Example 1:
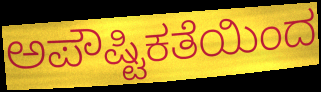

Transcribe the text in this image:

ಅಪೌಷ್ಟಿಕತೆಯಿಂದ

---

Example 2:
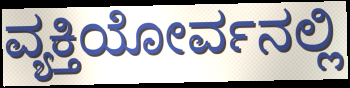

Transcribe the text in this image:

ವ್ಯಕ್ತಿಯೋರ್ವನಲ್ಲಿ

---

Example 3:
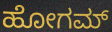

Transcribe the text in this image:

ಹೋಗಮ್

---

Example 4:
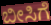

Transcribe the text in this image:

ಬೀಸಿಗೆ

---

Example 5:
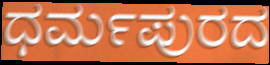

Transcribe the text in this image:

ಧರ್ಮಪುರದ